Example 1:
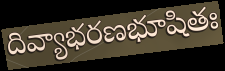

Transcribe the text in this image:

దివ్యాభరణభూషితః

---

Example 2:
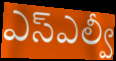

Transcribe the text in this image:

ఎస్ఎల్వీ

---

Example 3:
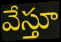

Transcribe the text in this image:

వేస్తూ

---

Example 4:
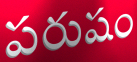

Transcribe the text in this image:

పరుషం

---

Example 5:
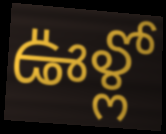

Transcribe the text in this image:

ఊళ్లో